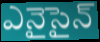
ఎనైసైన్